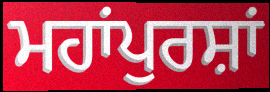
ਮਹਾਂਪੁਰਸ਼ਾਂ